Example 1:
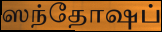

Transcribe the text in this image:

ஸந்தோஷப்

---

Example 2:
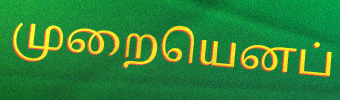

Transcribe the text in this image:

முறையெனப்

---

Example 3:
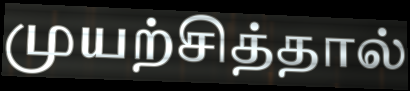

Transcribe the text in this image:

முயற்சித்தால்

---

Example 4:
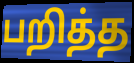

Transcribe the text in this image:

பறித்த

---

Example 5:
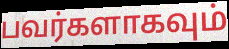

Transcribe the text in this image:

பவர்களாகவும்